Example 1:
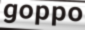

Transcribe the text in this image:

goppo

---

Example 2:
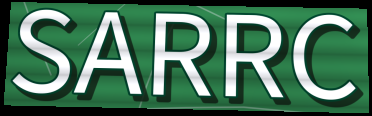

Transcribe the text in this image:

SARRC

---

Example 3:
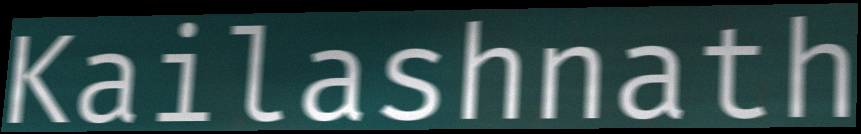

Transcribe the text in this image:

Kailashnath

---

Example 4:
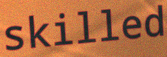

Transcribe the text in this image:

skilled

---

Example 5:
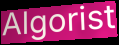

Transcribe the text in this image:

Algorist